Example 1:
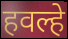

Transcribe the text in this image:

हवल्हे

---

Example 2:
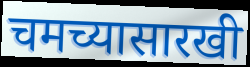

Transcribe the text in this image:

चमच्यासारखी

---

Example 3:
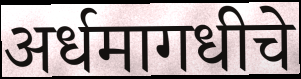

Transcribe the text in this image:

अर्धमागधीचे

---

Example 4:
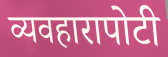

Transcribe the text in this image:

व्यवहारापोटी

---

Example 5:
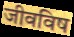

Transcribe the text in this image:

जीवविष